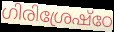
ഗിരിശ്രേഷ്ഠേ